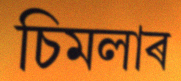
চিমলাৰ